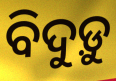
ବିଦୁଡ଼ୁ